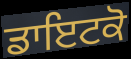
ਡਾਇਟਕੋ